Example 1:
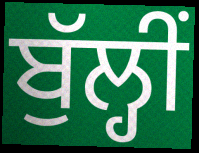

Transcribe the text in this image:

ਬੁੱਲ੍ਹੀਂ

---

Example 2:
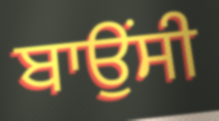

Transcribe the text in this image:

ਬਾਉਂਸੀ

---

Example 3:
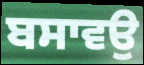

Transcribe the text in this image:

ਬਸਾਵਉ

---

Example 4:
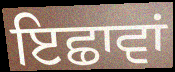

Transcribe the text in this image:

ਇਛਾਵਾਂ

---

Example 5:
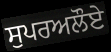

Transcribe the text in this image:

ਸੁਪਰਅਲੌਏ